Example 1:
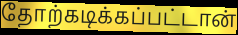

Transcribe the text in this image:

தோற்கடிக்கப்பட்டான்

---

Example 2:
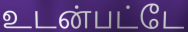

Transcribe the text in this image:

உடன்பட்டே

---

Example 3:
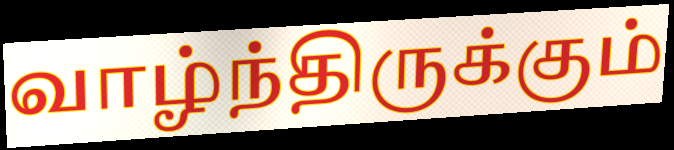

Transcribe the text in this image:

வாழ்ந்திருக்கும்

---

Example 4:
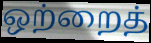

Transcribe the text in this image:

ஒற்றைத்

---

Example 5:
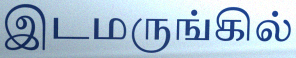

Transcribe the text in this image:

இடமருங்கில்